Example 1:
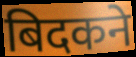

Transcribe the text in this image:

बिदकने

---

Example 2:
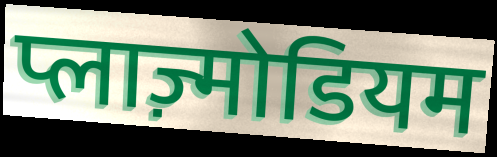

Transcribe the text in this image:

प्लाज़्मोडियम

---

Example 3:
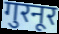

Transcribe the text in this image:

गुरनूर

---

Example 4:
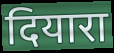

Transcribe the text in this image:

दियारा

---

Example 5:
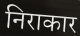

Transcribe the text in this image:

निराकार